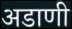
अडाणी